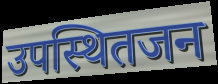
उपस्थितजन